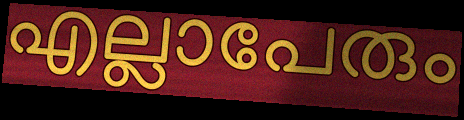
എല്ലാപേരും